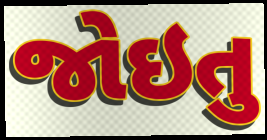
જોઇતુ